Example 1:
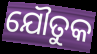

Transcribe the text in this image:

ଯୌତୁକ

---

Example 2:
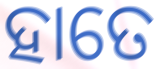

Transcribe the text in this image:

ହାତେ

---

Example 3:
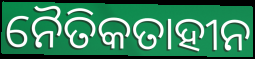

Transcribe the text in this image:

ନୈତିକତାହୀନ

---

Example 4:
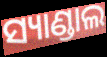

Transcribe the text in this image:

ସ୍ୟାଣ୍ଡାଲ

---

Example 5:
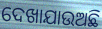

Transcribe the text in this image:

ଦେଖାଯାଉଅଛି